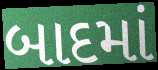
બાદમાં